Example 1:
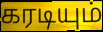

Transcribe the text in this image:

கரடியும்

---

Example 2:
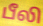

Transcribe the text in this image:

பீலி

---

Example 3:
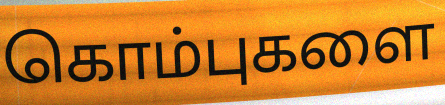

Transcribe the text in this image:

கொம்புகளை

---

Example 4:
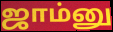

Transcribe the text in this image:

ஜாம்னு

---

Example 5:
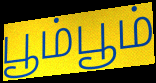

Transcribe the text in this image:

பூம்பூம்